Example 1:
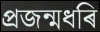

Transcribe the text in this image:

প্ৰজন্মধৰি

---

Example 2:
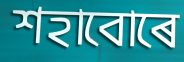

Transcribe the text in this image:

শহাবোৰে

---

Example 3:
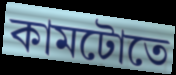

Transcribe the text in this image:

কামটোতে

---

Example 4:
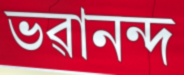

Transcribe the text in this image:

ভৱানন্দ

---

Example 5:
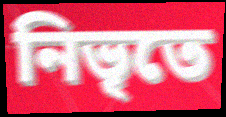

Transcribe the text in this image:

নিভৃতে